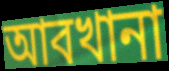
আবখানা